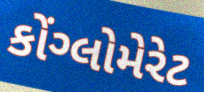
કોંગ્લોમેરેટ